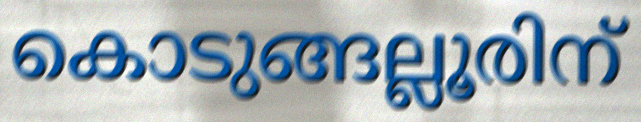
കൊടുങ്ങല്ലൂരിന്